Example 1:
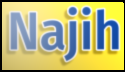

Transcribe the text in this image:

Najih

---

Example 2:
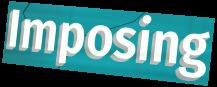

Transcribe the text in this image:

Imposing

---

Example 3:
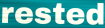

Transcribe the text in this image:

rested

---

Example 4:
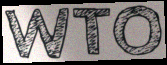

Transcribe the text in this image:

WTO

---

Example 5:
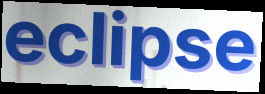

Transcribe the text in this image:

eclipse